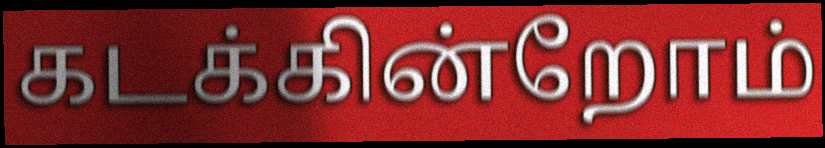
கடக்கின்றோம்